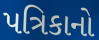
પત્રિકાનો